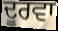
ਦੂਰਵਾ